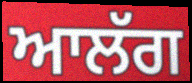
ਆਲੱਗ